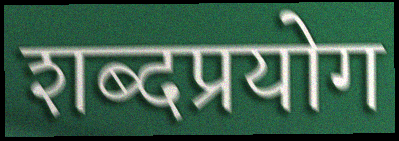
शब्दप्रयोग